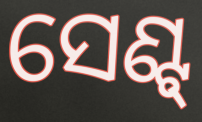
ସେଣ୍ଟ୍